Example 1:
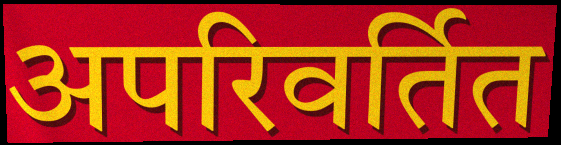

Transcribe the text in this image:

अपरिवर्तित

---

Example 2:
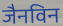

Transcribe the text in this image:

जैनविन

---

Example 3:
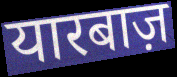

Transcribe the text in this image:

यारबाज़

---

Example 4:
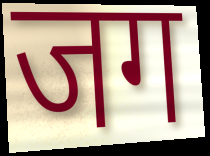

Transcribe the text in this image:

जग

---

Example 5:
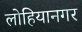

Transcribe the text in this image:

लोहियानगर